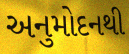
અનુમોદનથી